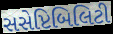
સસેપ્ટિબિલિટી